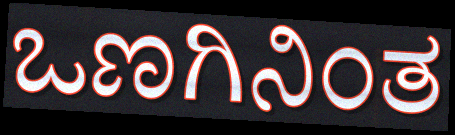
ಒಣಗಿನಿಂತ